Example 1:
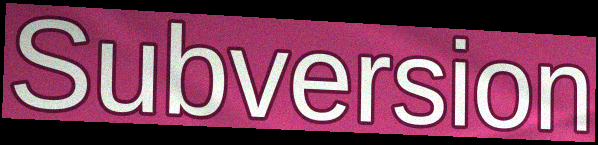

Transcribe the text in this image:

Subversion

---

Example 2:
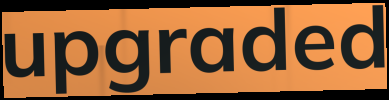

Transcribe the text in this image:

upgraded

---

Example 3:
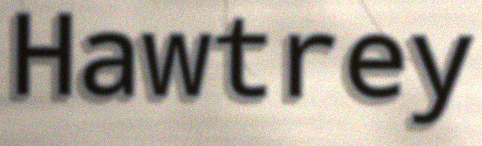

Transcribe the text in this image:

Hawtrey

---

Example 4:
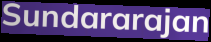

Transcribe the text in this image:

Sundararajan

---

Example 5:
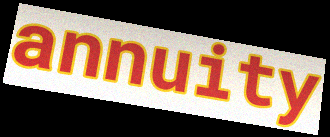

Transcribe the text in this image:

annuity